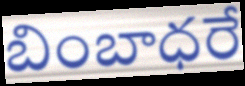
బింబాధరే